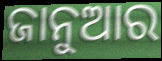
ଜାନୁଆର